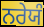
ਨਰੇਯੰ